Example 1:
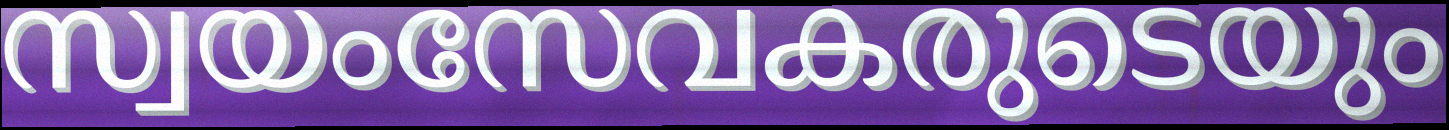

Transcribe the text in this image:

സ്വയംസേവകരുടെയും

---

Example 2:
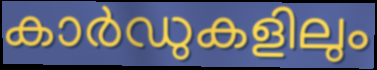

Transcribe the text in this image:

കാർഡുകളിലും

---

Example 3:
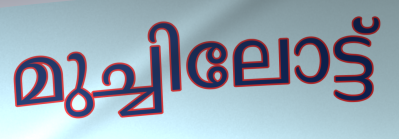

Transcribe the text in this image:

മുച്ചിലോട്ട്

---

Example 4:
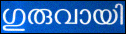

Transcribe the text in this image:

ഗുരുവായി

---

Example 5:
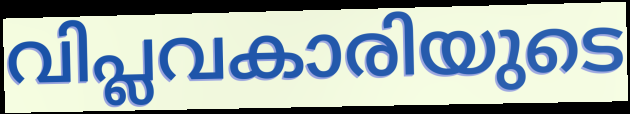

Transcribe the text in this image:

വിപ്ലവകാരിയുടെ